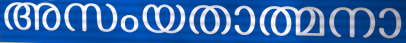
അസംയതാത്മനാ